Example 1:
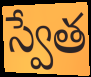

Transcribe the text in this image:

స్వేత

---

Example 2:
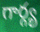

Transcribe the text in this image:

గార్గ్య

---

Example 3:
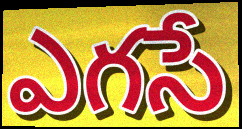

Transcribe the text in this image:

ఎగసే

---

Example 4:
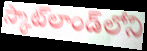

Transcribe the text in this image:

స్కాట్‌లాండ్‌లోని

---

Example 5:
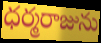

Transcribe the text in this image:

ధర్మరాజును